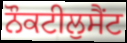
ਨੌਕਟੀਲੁਸੈਂਟ